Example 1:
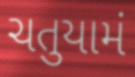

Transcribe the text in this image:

ચતુયામં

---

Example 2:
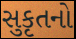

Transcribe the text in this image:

સુકૃતનો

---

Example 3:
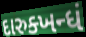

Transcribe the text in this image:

દારુક્ખન્ધં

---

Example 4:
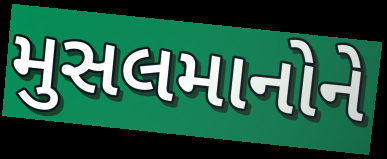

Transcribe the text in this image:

મુસલમાનોને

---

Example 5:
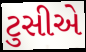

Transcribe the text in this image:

ટુસીએ